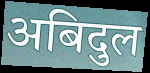
अबिदुल